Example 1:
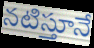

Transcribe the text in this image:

నటిస్తూనే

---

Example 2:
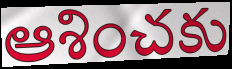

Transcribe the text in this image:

ఆశించకు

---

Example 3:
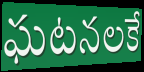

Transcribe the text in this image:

ఘటనలకే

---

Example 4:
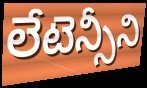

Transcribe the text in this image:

లేటెన్సీని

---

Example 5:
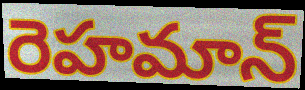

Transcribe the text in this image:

రెహమాన్